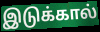
இடுக்கால்